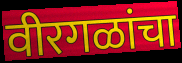
वीरगळांचा